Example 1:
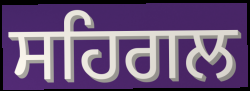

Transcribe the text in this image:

ਸਹਿਗਲ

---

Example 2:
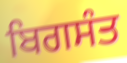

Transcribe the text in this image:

ਬਿਗਸੰਤ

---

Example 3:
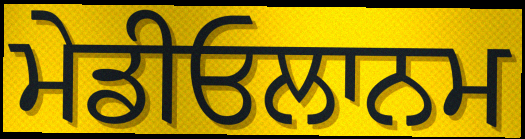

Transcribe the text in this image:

ਮੇਡੀਓਲਾਨਮ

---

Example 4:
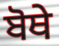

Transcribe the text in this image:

ਬੋਥੇ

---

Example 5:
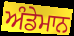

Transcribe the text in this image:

ਅੰਡੇਮਾਨ